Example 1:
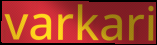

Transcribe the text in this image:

varkari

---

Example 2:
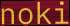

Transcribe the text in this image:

noki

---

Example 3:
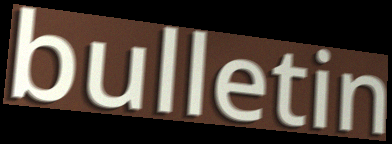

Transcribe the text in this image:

bulletin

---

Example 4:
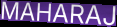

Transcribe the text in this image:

MAHARAJ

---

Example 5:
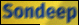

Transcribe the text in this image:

Sondeep